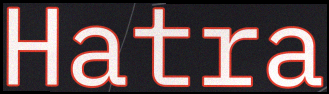
Hatra